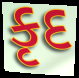
કૃદ